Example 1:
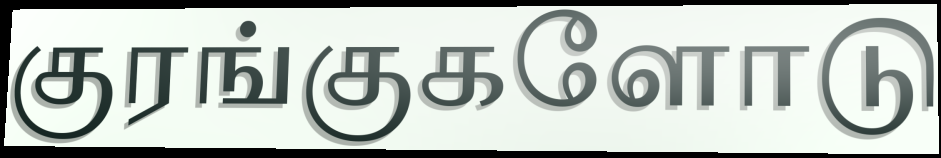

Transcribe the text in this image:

குரங்குகளோடு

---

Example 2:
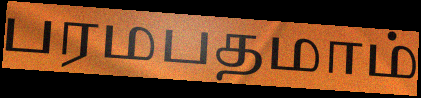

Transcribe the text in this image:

பரமபதமாம்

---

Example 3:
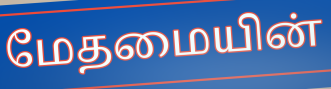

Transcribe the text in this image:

மேதமையின்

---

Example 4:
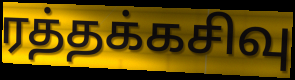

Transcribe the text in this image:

ரத்தக்கசிவு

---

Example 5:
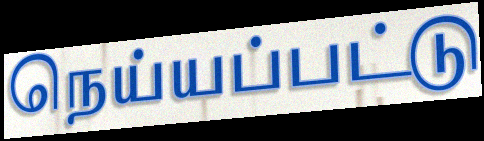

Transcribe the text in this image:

நெய்யப்பட்டு